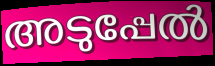
അടുപ്പേൽ